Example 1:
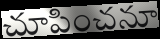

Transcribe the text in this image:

చూపించనూ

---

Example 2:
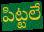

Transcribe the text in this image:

పిట్టలే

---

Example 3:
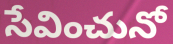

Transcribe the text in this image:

సేవించునో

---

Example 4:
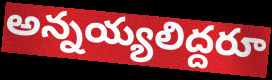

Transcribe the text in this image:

అన్నయ్యలిద్దరూ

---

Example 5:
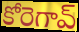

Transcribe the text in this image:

కోరెగావ్